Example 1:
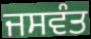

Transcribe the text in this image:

ਜਸਵੰਤ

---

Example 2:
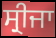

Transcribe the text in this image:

ਸ੍ਰੀਜਾ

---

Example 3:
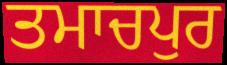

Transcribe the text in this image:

ਤਮਾਚਪੁਰ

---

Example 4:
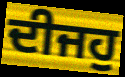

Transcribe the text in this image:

ਦੀਜਹੁ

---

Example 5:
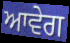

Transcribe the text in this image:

ਆਵੇਗ